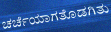
ಚರ್ಚೆಯಾಗತೊಡಗಿತು